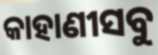
କାହାଣୀସବୁ